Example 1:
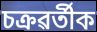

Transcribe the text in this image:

চক্ৰৱৰ্তীক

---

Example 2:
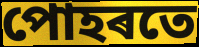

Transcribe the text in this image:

পোহৰতে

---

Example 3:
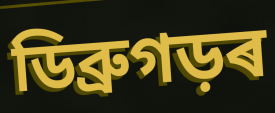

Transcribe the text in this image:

ডিব্ৰুগড়ৰ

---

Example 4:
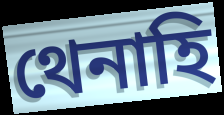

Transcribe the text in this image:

থেনাহি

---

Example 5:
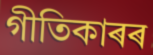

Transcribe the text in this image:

গীতিকাৰৰ